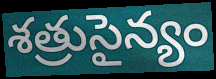
శత్రుసైన్యం